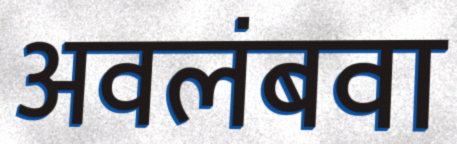
अवलंबवा